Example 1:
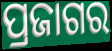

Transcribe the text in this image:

ପ୍ରଜାଗର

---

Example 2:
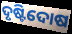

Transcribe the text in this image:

ଦୃଷ୍ଟିଦୋଷ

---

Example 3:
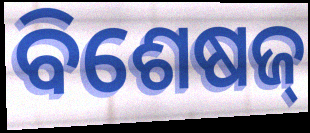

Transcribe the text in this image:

ବିଶେଷଜ୍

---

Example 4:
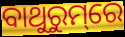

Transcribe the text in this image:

ବାଥୁରୁମ୍‌ରେ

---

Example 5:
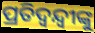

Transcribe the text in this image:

ପ୍ରତିଦ୍ଵନ୍ଦ୍ୱୀଙ୍କୁ